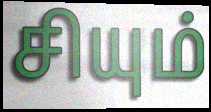
சியும்